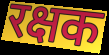
रक्षक